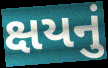
ક્ષયનું